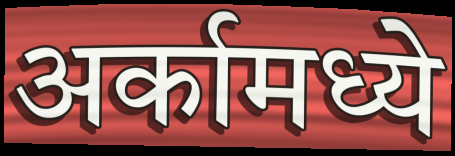
अर्कामध्ये